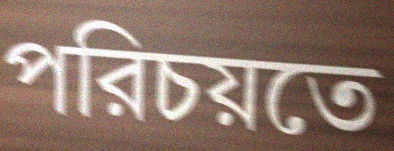
পরিচয়তে